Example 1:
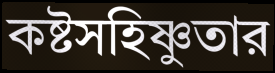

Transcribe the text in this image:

কষ্টসহিষ্ণুতার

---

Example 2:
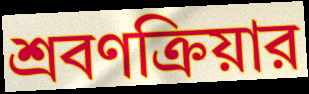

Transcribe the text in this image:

শ্রবণক্রিয়ার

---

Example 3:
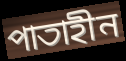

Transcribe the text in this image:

পাতাহীন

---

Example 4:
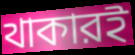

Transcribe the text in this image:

থাকারই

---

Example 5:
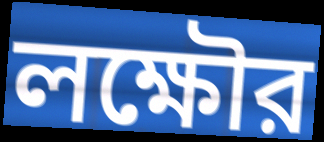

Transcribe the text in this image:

লক্ষৌর